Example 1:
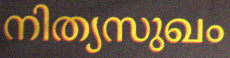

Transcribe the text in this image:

നിത്യസുഖം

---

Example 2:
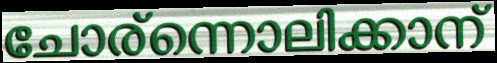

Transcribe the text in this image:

ചോര്ന്നൊലിക്കാന്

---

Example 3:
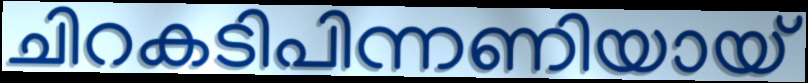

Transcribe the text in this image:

ചിറകടിപിന്നണിയായ്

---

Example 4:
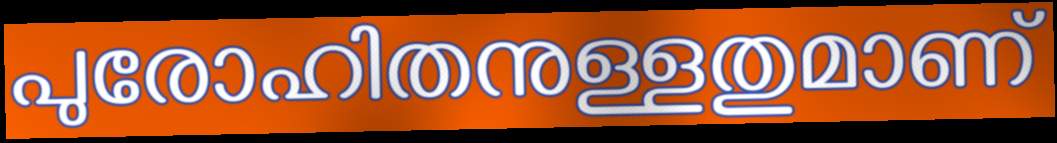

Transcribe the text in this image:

പുരോഹിതനുള്ളതുമാണ്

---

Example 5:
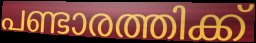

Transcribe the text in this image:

പണ്ടാരത്തിക്ക്